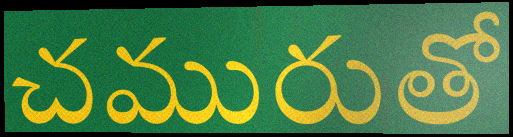
చమురుతో